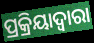
ପ୍ରକ୍ରିୟାଦ୍ଵାରା